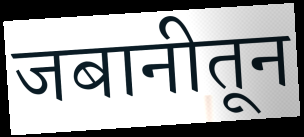
जबानीतून